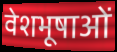
वेशभूषाओं